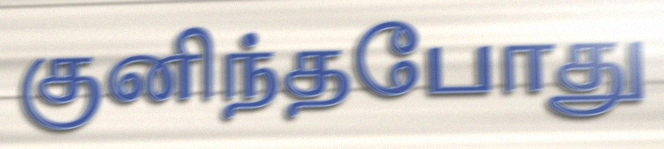
குனிந்தபோது